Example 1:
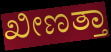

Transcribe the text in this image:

ಖೀಣತ್ತಾ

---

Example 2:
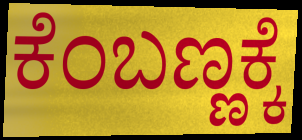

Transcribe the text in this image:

ಕೆಂಬಣ್ಣಕ್ಕೆ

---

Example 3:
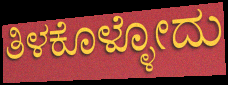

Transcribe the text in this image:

ತಿಳಕೊಳ್ಳೋದು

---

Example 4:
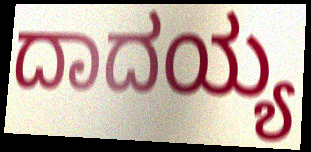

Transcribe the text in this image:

ದಾದಯ್ಯ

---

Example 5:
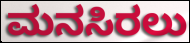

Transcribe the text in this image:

ಮನಸಿರಲು